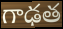
గాఢత